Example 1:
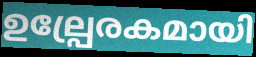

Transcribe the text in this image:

ഉല്പ്രേരകമായി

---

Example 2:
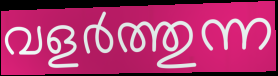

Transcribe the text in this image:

വളർത്തുന്ന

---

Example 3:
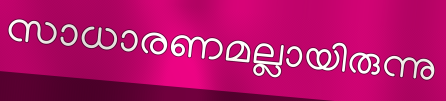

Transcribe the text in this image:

സാധാരണമല്ലായിരുന്നു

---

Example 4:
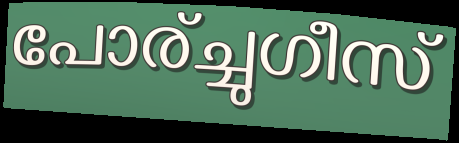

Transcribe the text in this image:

പോര്ച്ചുഗീസ്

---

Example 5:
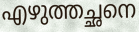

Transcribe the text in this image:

എഴുത്തച്ഛനെ